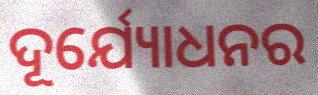
ଦୂର୍ଯ୍ୟୋଧନର